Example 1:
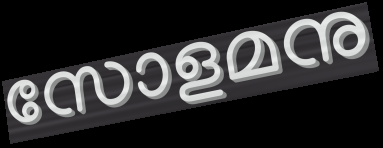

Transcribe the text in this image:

സോളമനു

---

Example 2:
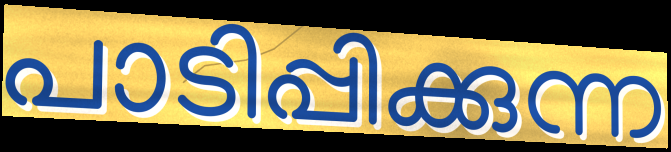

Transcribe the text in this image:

പാടിപ്പിക്കുന്ന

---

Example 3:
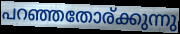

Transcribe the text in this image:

പറഞ്ഞതോര്ക്കുന്നു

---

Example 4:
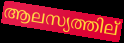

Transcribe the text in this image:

ആലസ്യത്തില്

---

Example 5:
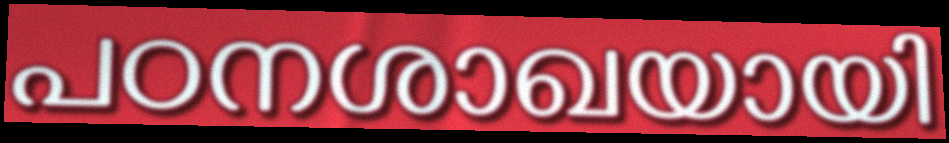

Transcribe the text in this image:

പഠനശാഖയായി